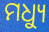
ମଧ୍ୟୁ